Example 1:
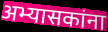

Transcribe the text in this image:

अभ्यासकांना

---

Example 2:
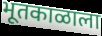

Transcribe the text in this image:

भूतकाळाला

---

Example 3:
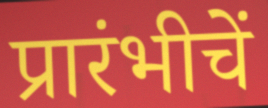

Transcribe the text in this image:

प्रारंभीचें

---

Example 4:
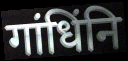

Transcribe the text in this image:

गांधिंनि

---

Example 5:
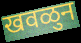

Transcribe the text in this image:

खवळुन